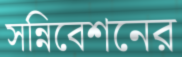
সন্নিবেশনের